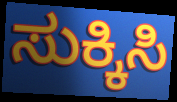
ಸುಕ್ಕಿಸಿ